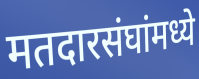
मतदारसंघांमध्ये